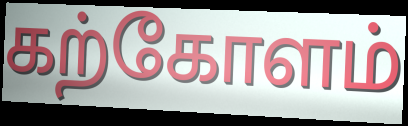
கற்கோளம்